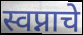
स्वप्नाचे